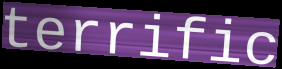
terrific